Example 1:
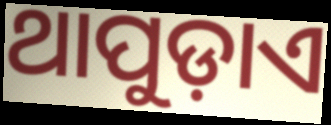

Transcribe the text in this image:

ଥାପୁଡ଼ାଏ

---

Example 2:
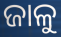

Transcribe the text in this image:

ଜାଳୁ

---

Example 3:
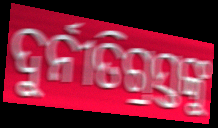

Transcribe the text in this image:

ଦୁର୍ନୀତିଗ୍ରସ୍ତଙ୍କୁ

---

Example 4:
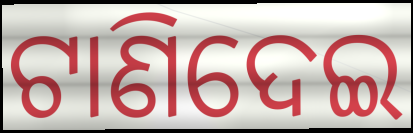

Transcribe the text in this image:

ଟାଣିଦେଇ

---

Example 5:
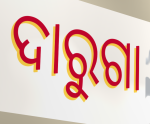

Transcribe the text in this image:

ଦାରୁଗା